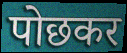
पोछकर